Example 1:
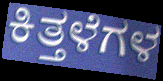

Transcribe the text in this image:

ಕಿತ್ತಳೆಗಳ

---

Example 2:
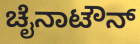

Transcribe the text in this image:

ಚೈನಾಟೌನ್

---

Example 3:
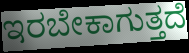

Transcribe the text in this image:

ಇರಬೇಕಾಗುತ್ತದೆ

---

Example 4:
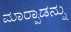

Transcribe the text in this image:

ಮಾರ‍್ಪಾಡನ್ನು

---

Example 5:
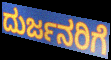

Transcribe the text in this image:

ದುರ್ಜನರಿಗೆ